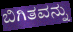
ಬಿಗಿತವನ್ನು